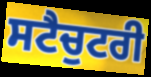
ਸਟੈਚੁਟਰੀ